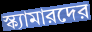
স্ক্যামারদের